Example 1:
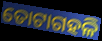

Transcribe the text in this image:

ତୋଟାଗହଳି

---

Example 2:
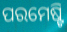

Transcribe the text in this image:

ପରମେଷ୍ଟି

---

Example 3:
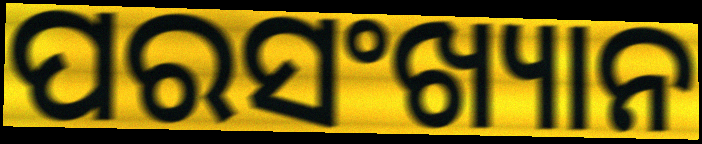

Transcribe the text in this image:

ପରସଂଖ୍ୟାନ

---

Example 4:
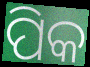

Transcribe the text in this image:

ପିକ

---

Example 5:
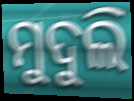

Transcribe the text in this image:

ମୁଦୁଲି